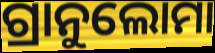
ଗ୍ରାନୁଲୋମା